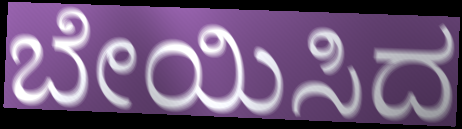
ಬೇಯಿಸಿದ